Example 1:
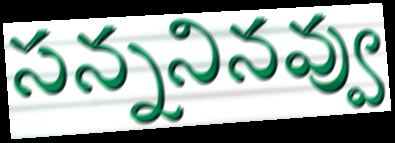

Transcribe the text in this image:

సన్ననినవ్వు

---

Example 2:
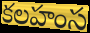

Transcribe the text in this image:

కలహంస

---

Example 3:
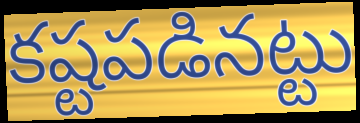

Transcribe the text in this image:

కష్టపడినట్టు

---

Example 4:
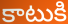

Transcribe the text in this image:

కాటుకి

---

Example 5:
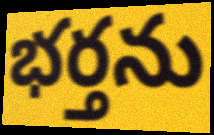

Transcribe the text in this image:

భర్తను